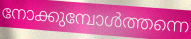
നോക്കുമ്പോൾത്തന്നെ